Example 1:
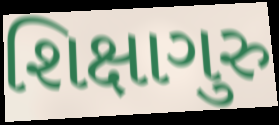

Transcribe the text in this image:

શિક્ષાગુરુ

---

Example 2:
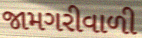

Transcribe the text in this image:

જામગરીવાળી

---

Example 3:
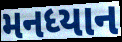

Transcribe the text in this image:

મનધ્યાન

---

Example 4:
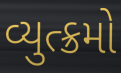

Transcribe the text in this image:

વ્યુત્ક્રમો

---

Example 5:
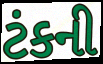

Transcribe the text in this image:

ટંકની